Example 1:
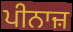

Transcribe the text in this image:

ਪੀਨਾਜ਼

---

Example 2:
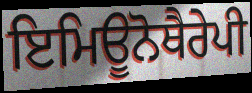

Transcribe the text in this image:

ਇਮਿਊਨੋਥੈਰੇਪੀ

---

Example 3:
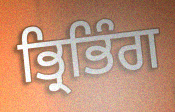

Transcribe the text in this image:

ਭ੍ਰਿਭਿੰਗ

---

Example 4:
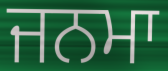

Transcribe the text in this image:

ਜਨਮਾ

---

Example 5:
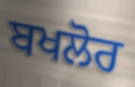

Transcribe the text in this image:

ਬਖਲੋਰ